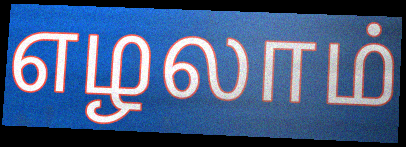
எழலாம்